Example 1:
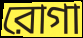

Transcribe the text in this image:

রোগা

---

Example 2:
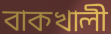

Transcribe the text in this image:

বাকখালী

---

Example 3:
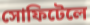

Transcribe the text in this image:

সোফিটেলে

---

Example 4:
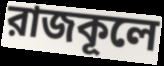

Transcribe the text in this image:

রাজকূলে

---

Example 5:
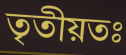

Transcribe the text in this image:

তৃতীয়তঃ